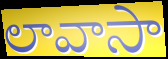
లావాసా